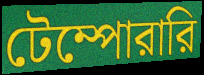
টেম্পোরারি